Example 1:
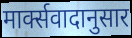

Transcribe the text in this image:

मार्क्सवादानुसार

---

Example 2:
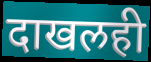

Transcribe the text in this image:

दाखलही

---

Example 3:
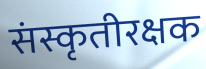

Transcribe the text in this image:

संस्कृतीरक्षक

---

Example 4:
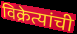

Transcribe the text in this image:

विक्रेत्यांची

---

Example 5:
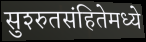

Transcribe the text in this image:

सुश्रुतसंहितेमध्ये